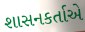
શાસનકર્તાએ